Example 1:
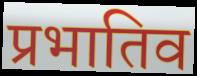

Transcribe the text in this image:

प्रभातिव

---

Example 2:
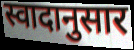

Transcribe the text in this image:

स्वादानुसार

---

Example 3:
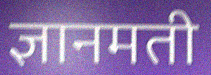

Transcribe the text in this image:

ज्ञानमती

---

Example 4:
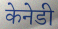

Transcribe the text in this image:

केनेडी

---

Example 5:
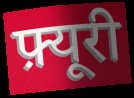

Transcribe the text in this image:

फ़्यूरी